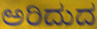
ಅರಿದುದ